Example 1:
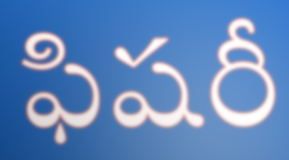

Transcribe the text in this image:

ఫిషరీ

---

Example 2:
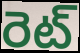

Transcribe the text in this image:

రెట్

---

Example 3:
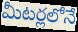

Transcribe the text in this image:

మీటర్లలోనే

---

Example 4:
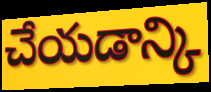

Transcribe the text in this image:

చేయడాన్కి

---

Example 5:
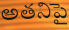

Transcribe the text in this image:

అతనిపై